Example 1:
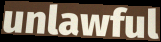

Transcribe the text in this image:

unlawful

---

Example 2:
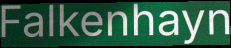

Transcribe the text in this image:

Falkenhayn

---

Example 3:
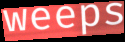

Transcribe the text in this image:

weeps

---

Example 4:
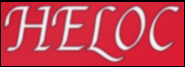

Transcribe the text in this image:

HELOC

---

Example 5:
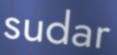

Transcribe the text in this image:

sudar